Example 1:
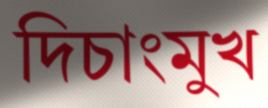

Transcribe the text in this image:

দিচাংমুখ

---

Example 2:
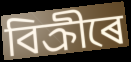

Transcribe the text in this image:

বিক্ৰীৰে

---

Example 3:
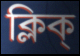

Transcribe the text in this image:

ক্লিক্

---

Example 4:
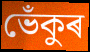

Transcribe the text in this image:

ভেঁকুৰ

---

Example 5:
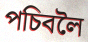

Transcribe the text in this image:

পচিবলৈ